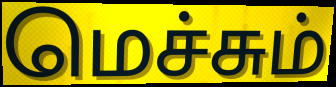
மெச்சும்